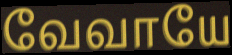
வேவாயே